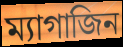
ম্যাগাজিন